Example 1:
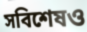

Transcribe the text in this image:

সবিশেষও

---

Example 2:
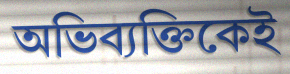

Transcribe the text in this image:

অভিব্যক্তিকেই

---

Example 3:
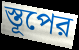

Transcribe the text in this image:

স্তূপের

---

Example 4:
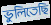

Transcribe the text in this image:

ভুলিতেছি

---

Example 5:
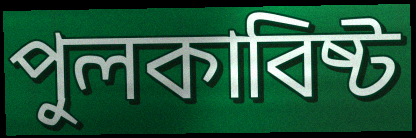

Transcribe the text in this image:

পুলকাবিষ্ট